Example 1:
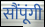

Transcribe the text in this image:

सौंपूंगी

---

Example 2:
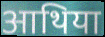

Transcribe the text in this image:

आथिया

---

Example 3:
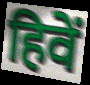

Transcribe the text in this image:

हिवें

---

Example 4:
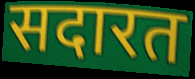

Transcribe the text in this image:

सदारत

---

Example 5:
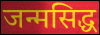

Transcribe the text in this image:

जन्‍मसिद्ध